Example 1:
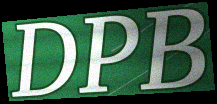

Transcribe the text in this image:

DPB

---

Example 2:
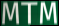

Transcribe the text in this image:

MTM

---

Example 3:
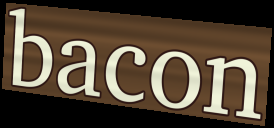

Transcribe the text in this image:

bacon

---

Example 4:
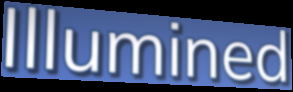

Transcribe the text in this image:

Illumined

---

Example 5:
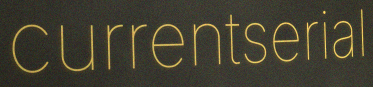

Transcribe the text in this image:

currentserial